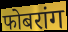
फोबरांग